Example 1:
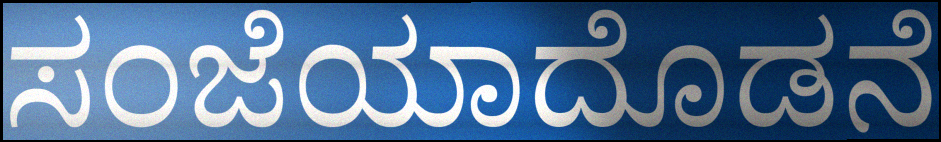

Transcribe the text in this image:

ಸಂಜೆಯಾದೊಡನೆ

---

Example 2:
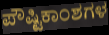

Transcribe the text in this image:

ಪೌಷ್ಟಿಕಾಂಶಗಳ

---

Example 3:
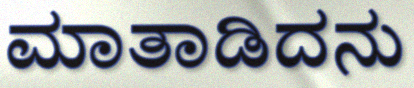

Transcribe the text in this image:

ಮಾತಾಡಿದನು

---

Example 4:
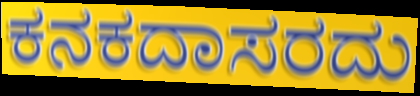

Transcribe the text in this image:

ಕನಕದಾಸರದು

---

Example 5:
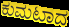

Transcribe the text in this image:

ಕುಮಟಾದ